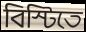
বিস্টিতে